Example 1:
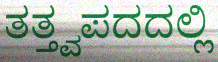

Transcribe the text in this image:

ತತ್ತ್ವಪದದಲ್ಲಿ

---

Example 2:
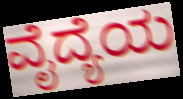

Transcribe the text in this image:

ವೈದ್ಯೆಯ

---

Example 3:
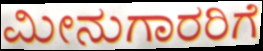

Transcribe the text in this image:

ಮೀನುಗಾರರಿಗೆ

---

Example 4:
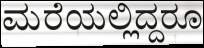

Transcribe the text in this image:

ಮರೆಯಲ್ಲಿದ್ದರೂ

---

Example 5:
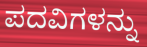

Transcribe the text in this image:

ಪದವಿಗಳನ್ನು